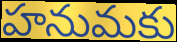
హనుమకు